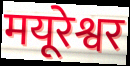
मयूरेश्वर